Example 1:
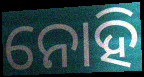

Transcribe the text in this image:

ନୋହି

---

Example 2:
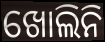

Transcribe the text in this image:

ଖୋଲିନି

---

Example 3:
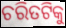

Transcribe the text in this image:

ଚରିତଟିକୁ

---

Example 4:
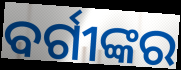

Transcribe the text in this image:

ବର୍ଗୀଙ୍କର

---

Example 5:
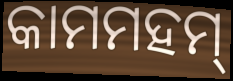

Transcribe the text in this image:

କାମମହମ୍